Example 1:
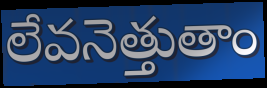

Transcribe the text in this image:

లేవనెత్తుతాం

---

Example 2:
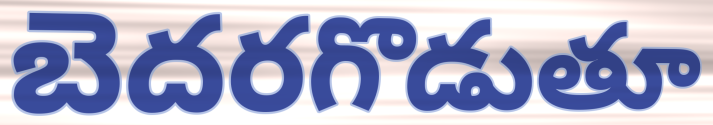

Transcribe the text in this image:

బెదరగొడుతూ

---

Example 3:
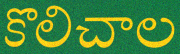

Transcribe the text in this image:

కొలిచాల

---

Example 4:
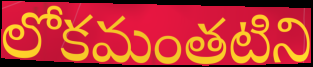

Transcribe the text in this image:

లోకమంతటిని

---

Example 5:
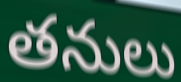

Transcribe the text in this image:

తనులు